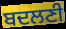
ਬਦਲਣੀ